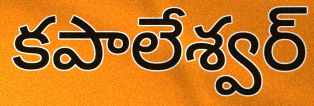
కపాలేశ్వర్